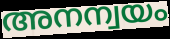
അനന്വയം